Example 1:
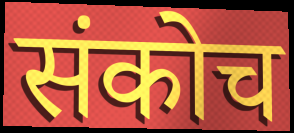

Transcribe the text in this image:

संकोच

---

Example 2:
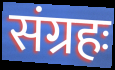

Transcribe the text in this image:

संग्रहः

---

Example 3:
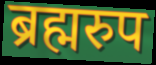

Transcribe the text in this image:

ब्रह्मरुप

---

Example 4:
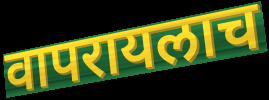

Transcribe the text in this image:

वापरायलाच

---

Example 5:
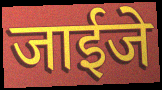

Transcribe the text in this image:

जाईजे